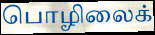
பொழிலைக்